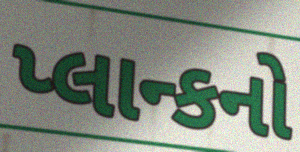
પ્લાન્કનો